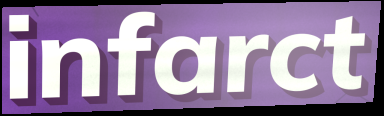
infarct